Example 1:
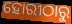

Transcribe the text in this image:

ହୋରୀଠାରୁ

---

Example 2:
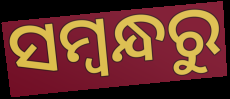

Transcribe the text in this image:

ସମ୍ୱନ୍ଧରୁ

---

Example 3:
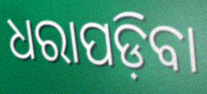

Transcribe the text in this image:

ଧରାପଡ଼ିବା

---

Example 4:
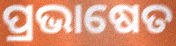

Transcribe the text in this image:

ପ୍ରଭାଷେତ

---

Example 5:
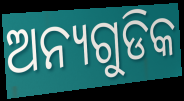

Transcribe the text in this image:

ଅନ୍ୟଗୁଡିକ